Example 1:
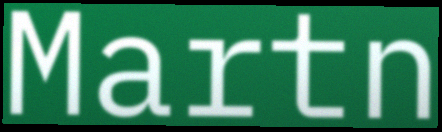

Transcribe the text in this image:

Martn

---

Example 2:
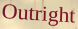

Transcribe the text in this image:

Outright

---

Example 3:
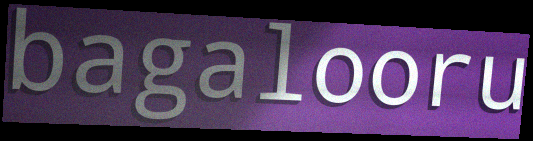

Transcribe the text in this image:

bagalooru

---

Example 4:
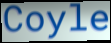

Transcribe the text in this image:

Coyle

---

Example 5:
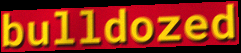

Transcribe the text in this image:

bulldozed